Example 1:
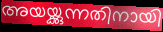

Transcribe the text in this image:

അയയ്ക്കുന്നതിനായി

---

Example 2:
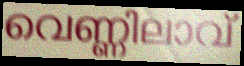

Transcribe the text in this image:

വെണ്ണിലാവ്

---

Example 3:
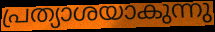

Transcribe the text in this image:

പ്രത്യാശയാകുന്നു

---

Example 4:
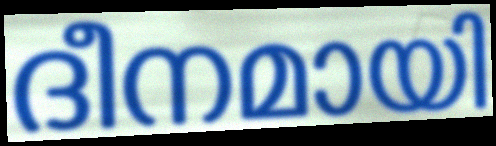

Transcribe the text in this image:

ദീനമായി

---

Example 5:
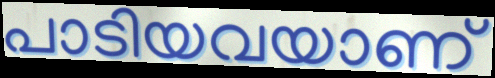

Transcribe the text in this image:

പാടിയവയാണ്